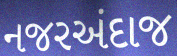
નજરઅંદાજ